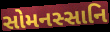
સોમનસ્સાનિ